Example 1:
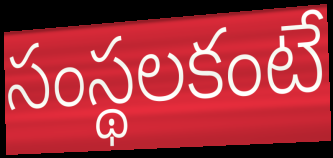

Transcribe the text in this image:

సంస్థలకంటే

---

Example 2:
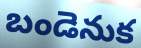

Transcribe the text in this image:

బండెనుక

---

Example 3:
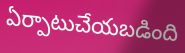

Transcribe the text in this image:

ఏర్పాటుచేయబడింది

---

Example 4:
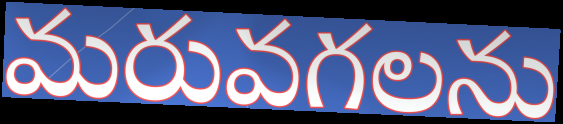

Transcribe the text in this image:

మరువగలను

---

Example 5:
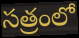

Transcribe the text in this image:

సత్రంలో